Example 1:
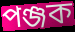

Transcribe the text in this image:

পঞ্জক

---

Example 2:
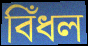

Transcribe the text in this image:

বিঁধল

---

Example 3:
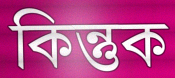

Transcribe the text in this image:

কিন্তুক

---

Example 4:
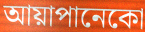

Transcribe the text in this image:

আয়াপানেকো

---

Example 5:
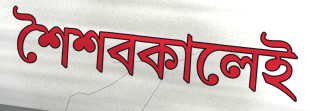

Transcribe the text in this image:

শৈশবকালেই